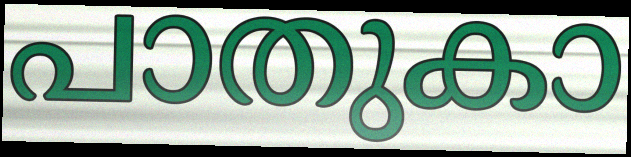
പാതുകാ